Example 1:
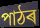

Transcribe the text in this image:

পাঠৰ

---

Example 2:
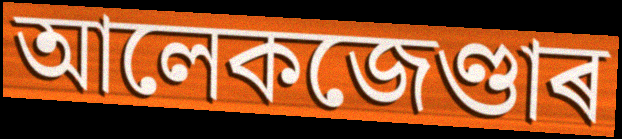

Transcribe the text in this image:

আলেকজেণ্ডাৰ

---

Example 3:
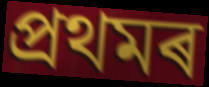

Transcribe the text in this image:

প্ৰথমৰ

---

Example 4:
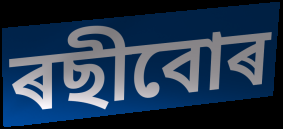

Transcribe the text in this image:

ৰছীবোৰ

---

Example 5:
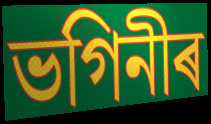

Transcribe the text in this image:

ভগিনীৰ